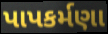
પાપકર્મણા